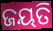
ଜୟତି